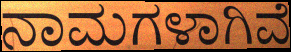
ನಾಮಗಳಾಗಿವೆ